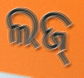
ଲଜ୍